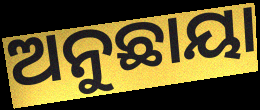
ଅନୁଛାୟା